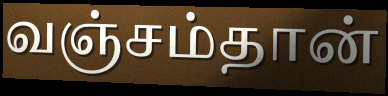
வஞ்சம்தான்